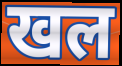
खल